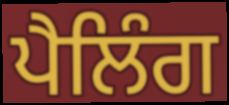
ਪੈਲਿੰਗ